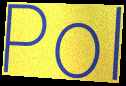
Pol